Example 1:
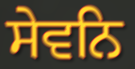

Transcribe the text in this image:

ਸੇਵਨਿ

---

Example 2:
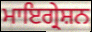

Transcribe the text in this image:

ਮਾਇਗ੍ਰੇਸ਼ਨ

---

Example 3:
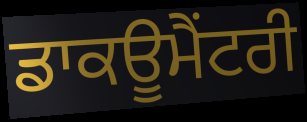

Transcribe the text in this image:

ਡਾਕਊਮੈਂਟਰੀ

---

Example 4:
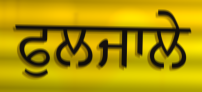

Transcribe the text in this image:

ਫੁਲਜਾਲੇ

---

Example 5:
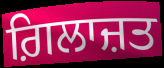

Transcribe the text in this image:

ਗ਼ਿਲਾਜ਼ਤ